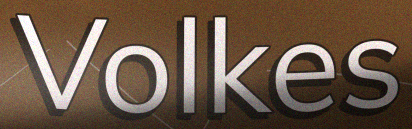
Volkes